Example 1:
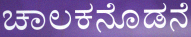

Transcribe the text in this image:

ಚಾಲಕನೊಡನೆ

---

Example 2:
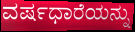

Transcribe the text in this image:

ವರ್ಷಧಾರೆಯನ್ನು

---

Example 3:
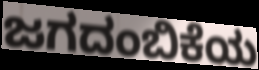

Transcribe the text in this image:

ಜಗದಂಬಿಕೆಯ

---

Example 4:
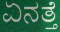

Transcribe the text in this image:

ಏನತ್ತೆ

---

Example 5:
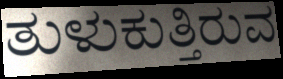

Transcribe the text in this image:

ತುಳುಕುತ್ತಿರುವ